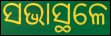
ସଭାସ୍ଥଳେ